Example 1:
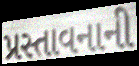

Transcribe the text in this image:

પ્રસ્તાવનાની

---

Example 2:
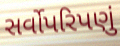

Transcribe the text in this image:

સર્વોપરિપણું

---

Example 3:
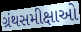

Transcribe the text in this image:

ગ્રંથસમીક્ષાઓ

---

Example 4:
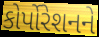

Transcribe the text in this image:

કોર્પોરેશનને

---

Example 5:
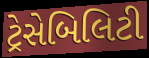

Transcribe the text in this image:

ટ્રેસેબિલિટી